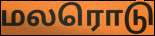
மலரொடு